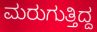
ಮರುಗುತ್ತಿದ್ದ